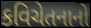
કવિચેતનાનો